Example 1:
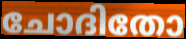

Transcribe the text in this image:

ചോദിതോ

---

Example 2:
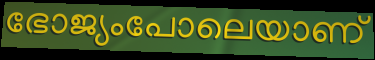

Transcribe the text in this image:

ഭോജ്യംപോലെയാണ്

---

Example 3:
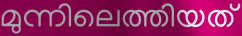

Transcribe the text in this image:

മുന്നിലെത്തിയത്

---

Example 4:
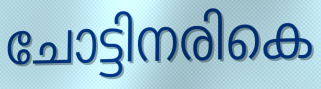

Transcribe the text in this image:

ചോട്ടിനരികെ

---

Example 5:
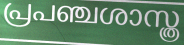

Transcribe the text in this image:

പ്രപഞ്ചശാസ്ത്ര